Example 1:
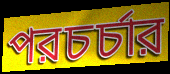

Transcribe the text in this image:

পরচর্চার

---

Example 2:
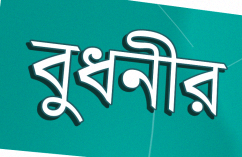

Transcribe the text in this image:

বুধনীর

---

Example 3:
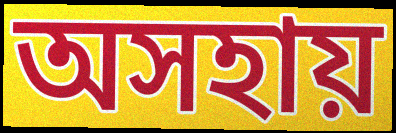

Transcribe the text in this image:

অসহায়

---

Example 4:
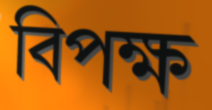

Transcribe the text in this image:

বিপক্ষ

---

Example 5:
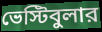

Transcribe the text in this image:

ভেস্টিবুলার